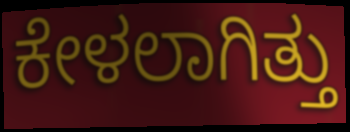
ಕೇಳಲಾಗಿತ್ತು